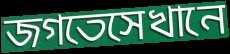
জগতেসেখানে